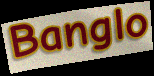
Banglo